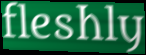
fleshly